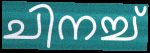
ചിനച്ച്